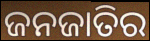
ଜନଜାତିର